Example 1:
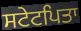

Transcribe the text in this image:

ਸਟੇਟਪਿਤਾ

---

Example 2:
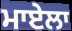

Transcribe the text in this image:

ਮਾਏਲਾ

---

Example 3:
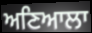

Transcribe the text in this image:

ਅਣਿਆਲਾ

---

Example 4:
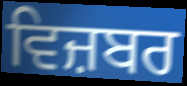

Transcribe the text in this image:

ਵਿਜ਼ਬਰ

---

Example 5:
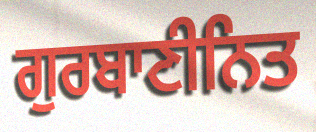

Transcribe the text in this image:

ਗੁਰਬਾਣੀਨਿਤ